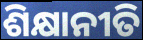
ଶିକ୍ଷାନୀତି